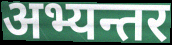
अभ्यन्तर